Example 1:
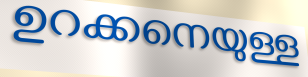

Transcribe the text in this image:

ഉറക്കനെയുള്ള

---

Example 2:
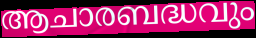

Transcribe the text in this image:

ആചാരബദ്ധവും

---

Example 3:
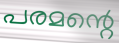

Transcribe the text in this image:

പരമന്റെ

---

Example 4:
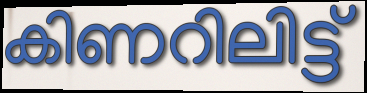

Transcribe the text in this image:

കിണറിലിട്ട്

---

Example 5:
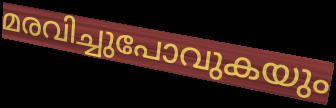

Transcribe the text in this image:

മരവിച്ചുപോവുകയും